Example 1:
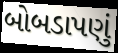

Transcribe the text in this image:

બોબડાપણું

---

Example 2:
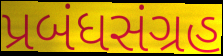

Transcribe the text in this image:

પ્રબંધસંગ્રહ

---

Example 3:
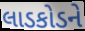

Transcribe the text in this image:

લાડકોડને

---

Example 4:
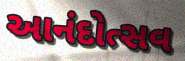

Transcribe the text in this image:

આનંદોત્સવ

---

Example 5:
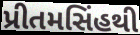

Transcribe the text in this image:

પ્રીતમસિંહથી